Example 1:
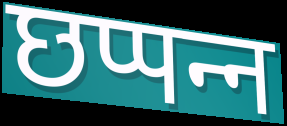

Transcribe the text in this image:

छप्पन्न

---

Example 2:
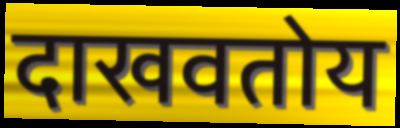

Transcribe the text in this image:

दाखवतोय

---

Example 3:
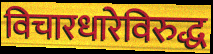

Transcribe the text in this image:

विचारधारेविरुद्ध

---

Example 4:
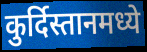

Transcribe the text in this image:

कुर्दिस्तानमध्ये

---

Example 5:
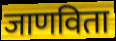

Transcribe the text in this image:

जाणविता